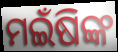
ମଇଁଷିଙ୍କ